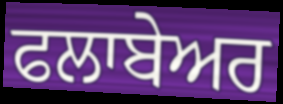
ਫਲਾਬੇਅਰ